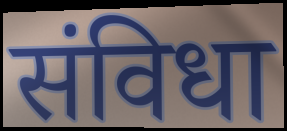
संविधा